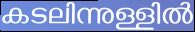
കടലിന്നുള്ളിൽ